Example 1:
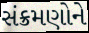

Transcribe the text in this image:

સંક્રમણોને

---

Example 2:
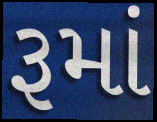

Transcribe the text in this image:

રૂમાં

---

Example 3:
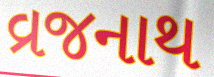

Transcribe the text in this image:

વ્રજનાથ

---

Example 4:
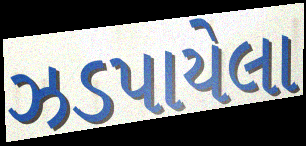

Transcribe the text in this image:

ઝડપાયેલા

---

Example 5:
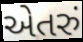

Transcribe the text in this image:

એતરું